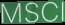
MSCI